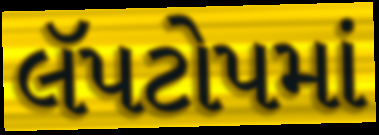
લૅપટોપમાં